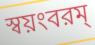
স্বয়ংবরম্